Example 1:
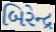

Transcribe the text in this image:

બિરેન્દ્ર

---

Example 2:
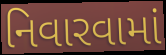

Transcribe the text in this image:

નિવારવામાં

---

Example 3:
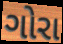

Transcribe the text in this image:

ગોરા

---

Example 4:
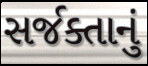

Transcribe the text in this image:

સર્જક્તાનું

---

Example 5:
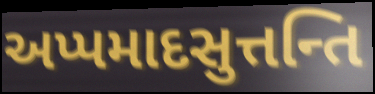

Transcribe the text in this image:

અપ્પમાદસુત્તન્તિ